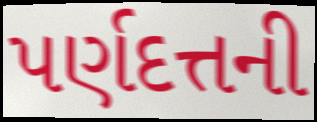
પર્ણદત્તની